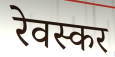
रेवस्कर